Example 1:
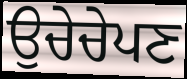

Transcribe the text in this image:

ਉਚੇਚੇਪਣ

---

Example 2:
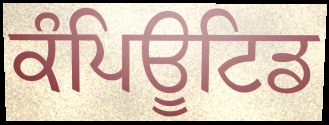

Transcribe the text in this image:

ਕੰਪਿਊਟਿਡ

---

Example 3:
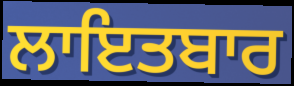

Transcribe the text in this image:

ਲਾਇਤਬਾਰ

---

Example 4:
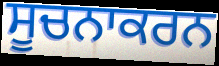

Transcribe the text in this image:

ਸੂਚਨਾਕਰਨ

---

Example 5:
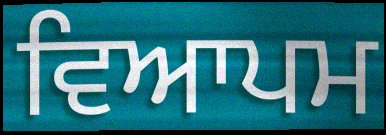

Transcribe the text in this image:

ਵਿਆਪਮ